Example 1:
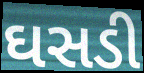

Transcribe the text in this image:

ઘસડી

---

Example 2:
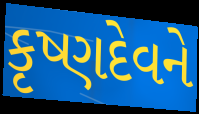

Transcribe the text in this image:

કૃષ્ણદેવને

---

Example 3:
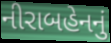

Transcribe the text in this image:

નીરાબહેનનું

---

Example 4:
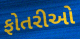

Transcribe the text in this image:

ફોતરીઓ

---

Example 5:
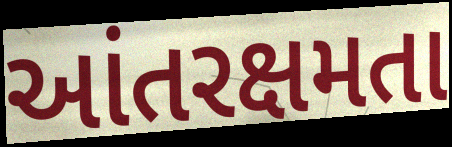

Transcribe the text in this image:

આંતરક્ષમતા